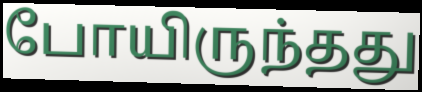
போயிருந்தது